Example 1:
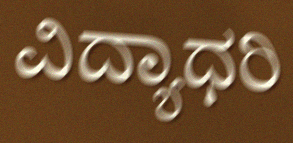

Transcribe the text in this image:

ವಿದ್ಯಾಧರಿ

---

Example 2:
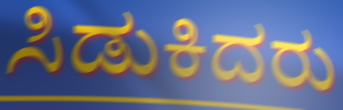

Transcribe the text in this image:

ಸಿಡುಕಿದರು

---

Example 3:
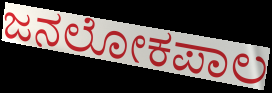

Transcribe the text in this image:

ಜನಲೋಕಪಾಲ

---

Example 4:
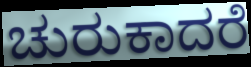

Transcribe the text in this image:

ಚುರುಕಾದರೆ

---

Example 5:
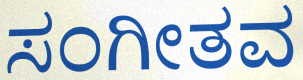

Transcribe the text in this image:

ಸಂಗೀತವ